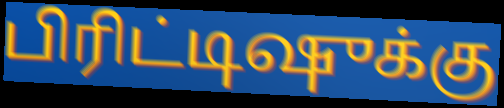
பிரிட்டிஷுக்கு